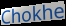
Chokhe